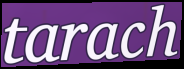
tarach